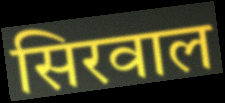
सिरवाल